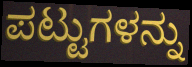
ಪಟ್ಟುಗಳನ್ನು